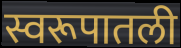
स्वरूपातली